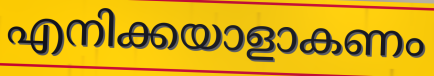
എനിക്കയാളാകണം